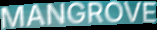
MANGROVE